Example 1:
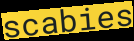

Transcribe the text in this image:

scabies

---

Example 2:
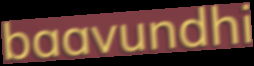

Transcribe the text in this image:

baavundhi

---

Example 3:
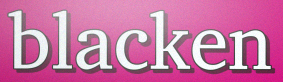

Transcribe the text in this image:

blacken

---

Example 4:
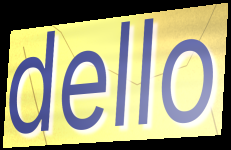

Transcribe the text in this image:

dello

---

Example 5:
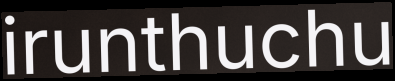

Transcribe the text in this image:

irunthuchu